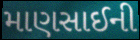
માણસાઈની